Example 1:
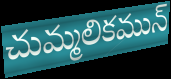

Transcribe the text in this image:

చుమ్మలికమున్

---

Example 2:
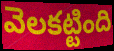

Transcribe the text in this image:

వెలకట్టింది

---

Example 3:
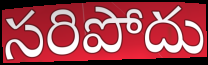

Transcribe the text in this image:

సరిపోదు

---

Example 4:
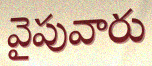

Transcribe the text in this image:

వైపువారు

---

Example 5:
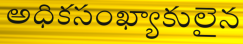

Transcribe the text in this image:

అధికసంఖ్యాకులైన